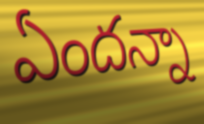
ఏందన్నా